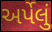
અર્પેલું